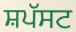
ਸ਼ਪੱਸਟ